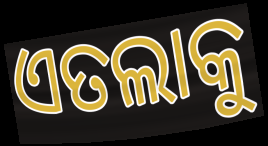
ଏତଲାକୁ